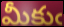
మీకుఁ